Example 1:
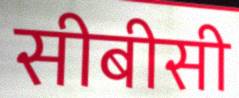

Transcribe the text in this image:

सीबीसी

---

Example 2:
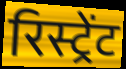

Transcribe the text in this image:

रिस्ट्रेंट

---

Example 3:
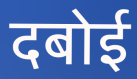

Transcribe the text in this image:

दबोई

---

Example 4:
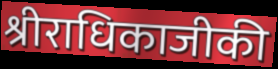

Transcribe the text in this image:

श्रीराधिकाजीकी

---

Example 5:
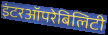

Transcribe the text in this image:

इंटरऑपरेबिलिटी